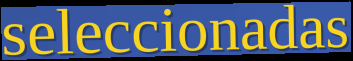
seleccionadas